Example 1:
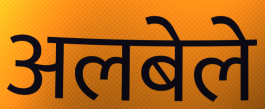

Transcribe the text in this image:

अलबेले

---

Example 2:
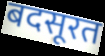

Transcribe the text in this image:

बदसूरत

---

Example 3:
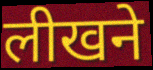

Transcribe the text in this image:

लीखने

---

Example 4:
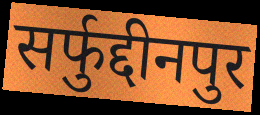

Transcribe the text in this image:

सर्फुद्दीनपुर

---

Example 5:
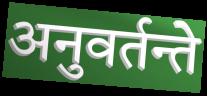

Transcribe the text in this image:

अनुवर्तन्ते